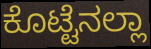
ಕೊಟ್ಟೆನಲ್ಲಾ